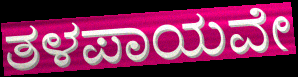
ತಳಪಾಯವೇ